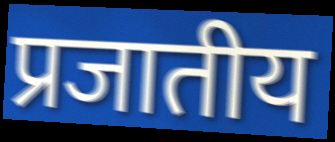
प्रजातीय